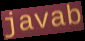
javab